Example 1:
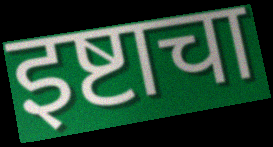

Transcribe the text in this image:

इष्टाचा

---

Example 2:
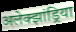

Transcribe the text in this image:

अलेक्झांड्रिया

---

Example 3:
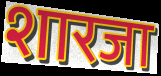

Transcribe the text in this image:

शारजा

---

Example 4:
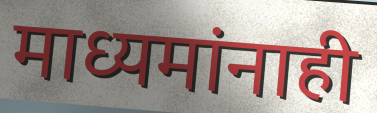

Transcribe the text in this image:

माध्यमांनाही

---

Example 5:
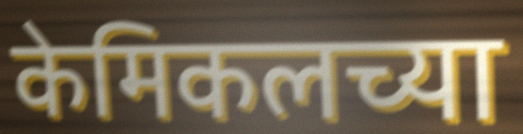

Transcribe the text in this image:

केमिकलच्या